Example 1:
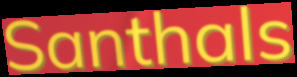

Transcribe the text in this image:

Santhals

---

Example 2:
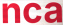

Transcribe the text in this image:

nca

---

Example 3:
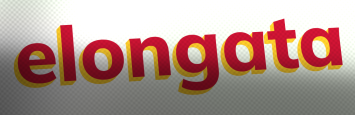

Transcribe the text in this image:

elongata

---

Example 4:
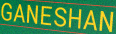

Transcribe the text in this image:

GANESHAN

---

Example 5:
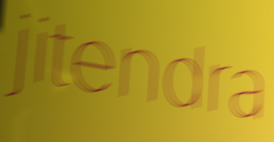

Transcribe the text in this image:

jitendra